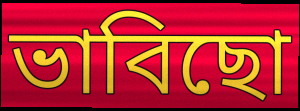
ভাবিছো